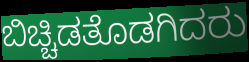
ಬಿಚ್ಚಿಡತೊಡಗಿದರು